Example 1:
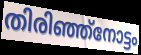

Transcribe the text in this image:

തിരിഞ്ഞ്നോട്ടം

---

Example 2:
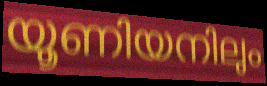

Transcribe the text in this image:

യൂണിയനിലും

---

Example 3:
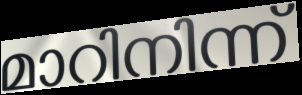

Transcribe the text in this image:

മാറിനിന്ന്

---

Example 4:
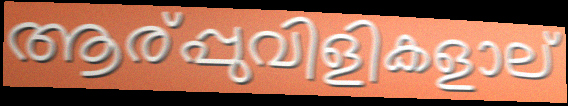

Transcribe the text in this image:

ആര്പ്പുവിളികളാല്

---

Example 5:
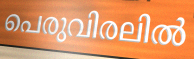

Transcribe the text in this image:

പെരുവിരലിൽ